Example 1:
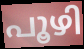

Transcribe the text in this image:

പൂഴി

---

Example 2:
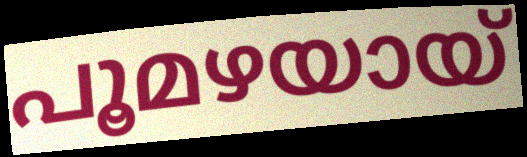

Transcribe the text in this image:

പൂമഴയായ്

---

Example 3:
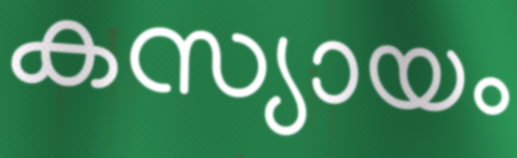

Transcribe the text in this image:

കസ്യായം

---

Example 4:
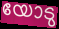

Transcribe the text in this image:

യോടു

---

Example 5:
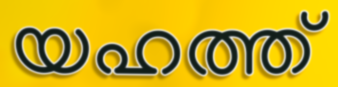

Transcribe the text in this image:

യഹത്ത്